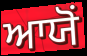
ਆਯੋਂ